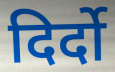
दिर्दो